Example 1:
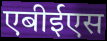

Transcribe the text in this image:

एबीईएस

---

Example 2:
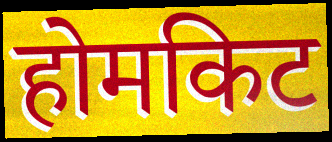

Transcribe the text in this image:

होमकिट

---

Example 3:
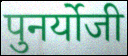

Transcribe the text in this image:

पुनर्योजी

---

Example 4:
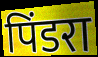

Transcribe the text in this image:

पिंडरा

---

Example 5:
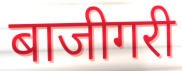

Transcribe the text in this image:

बाजीगरी